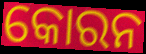
କୋରନ